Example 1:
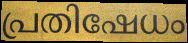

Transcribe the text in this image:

പ്രതിഷേധം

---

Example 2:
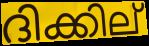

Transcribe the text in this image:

ദിക്കില്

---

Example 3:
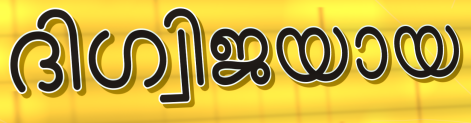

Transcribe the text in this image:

ദിഗ്വിജയായ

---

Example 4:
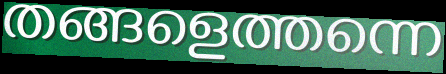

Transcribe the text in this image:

തങ്ങളെത്തന്നെ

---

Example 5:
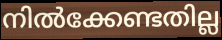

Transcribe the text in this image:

നിൽക്കേണ്ടതില്ല